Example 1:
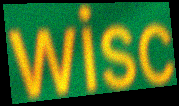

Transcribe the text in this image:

wisc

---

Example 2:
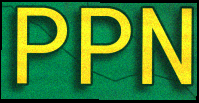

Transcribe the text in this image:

PPN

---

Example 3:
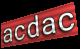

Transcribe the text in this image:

acdac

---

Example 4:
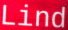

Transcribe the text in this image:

Lind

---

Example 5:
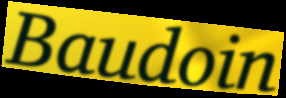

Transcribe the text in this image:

Baudoin